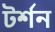
টর্শন